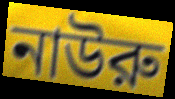
নাউরু